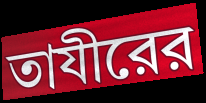
তাযীরের